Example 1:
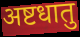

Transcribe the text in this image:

अष्टधातु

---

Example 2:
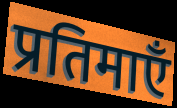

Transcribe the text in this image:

प्रतिमाएँ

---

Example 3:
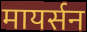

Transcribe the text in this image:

मायर्सन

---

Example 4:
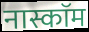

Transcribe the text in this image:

नास्कॉम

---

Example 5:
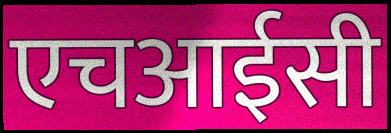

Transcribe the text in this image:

एचआईसी